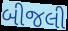
બીજલી